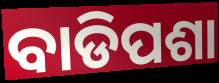
ବାଡିପଶା